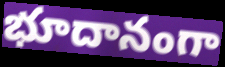
భూదానంగా